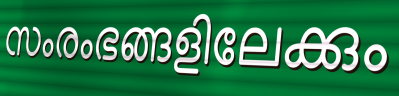
സംരംഭങ്ങളിലേക്കും